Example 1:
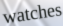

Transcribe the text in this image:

watches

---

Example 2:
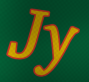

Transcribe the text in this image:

Jy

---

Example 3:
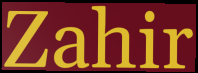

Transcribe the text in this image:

Zahir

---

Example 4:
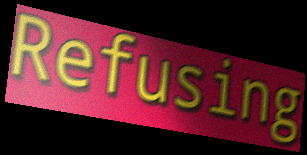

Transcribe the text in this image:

Refusing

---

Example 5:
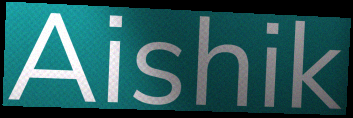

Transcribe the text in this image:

Aishik